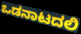
ಒಡನಾಟದಲಿ